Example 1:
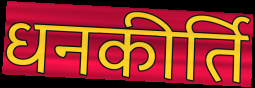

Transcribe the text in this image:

धनकीर्ति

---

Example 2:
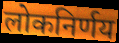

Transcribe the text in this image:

लोकनिर्णय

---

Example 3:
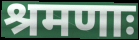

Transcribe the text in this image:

श्रमणाः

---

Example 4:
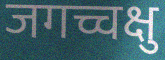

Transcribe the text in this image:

जगच्चक्षु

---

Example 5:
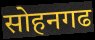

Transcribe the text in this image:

सोहनगढ